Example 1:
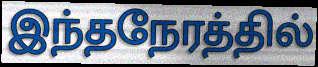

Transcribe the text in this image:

இந்தநேரத்தில்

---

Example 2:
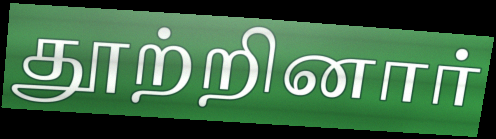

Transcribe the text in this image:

தூற்றினார்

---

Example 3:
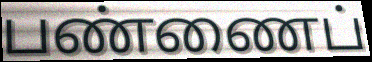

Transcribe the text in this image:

பண்ணைப்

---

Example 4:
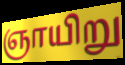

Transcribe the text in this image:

ஞாயிறு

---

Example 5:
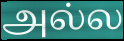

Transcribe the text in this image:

அல்ல